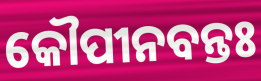
କୌପୀନବନ୍ତଃ